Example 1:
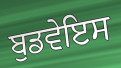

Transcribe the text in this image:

ਬੁਡਵੇਇਸ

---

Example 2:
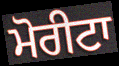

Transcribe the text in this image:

ਮੋਰੀਟਾ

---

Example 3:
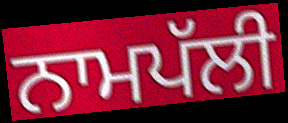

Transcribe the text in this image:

ਨਾਮਪੱਲੀ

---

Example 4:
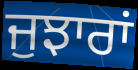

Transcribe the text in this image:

ਜੁਝਾਰਾਂ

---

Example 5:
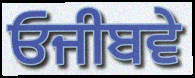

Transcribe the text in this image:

ਓਜੀਬਵੇ